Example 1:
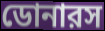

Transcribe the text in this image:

ডোনারস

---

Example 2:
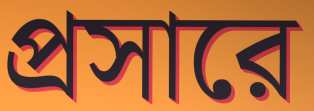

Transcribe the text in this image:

প্রসারে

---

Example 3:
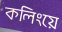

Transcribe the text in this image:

কলিংয়ে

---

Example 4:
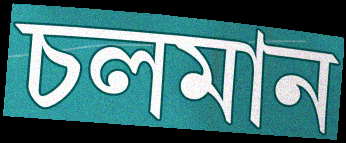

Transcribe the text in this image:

চলমান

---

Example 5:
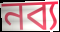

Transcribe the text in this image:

নব্য